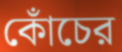
কোঁচের